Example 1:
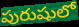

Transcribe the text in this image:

పురుషులో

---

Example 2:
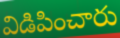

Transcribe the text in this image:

విడిపించారు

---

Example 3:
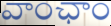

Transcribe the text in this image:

వాంఛాం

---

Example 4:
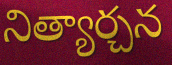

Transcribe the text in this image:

నిత్యార్చన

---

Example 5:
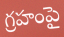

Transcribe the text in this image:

గ్రహంపై